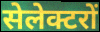
सेलेक्टरों